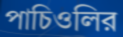
পাচিওলির